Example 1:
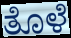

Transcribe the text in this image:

ತೊಳೆ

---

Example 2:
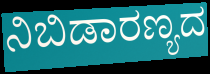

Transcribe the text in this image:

ನಿಬಿಡಾರಣ್ಯದ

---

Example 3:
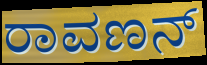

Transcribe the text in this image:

ರಾವಣನ್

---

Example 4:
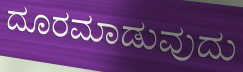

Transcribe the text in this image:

ದೂರಮಾಡುವುದು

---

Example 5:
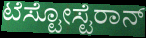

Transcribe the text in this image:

ಟೆಸ್ಟೋಸ್ಟೆರಾನ್